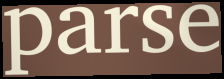
parse